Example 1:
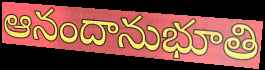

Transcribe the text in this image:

ఆనందానుభూతి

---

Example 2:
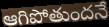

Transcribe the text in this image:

ఆగిపోతుందనే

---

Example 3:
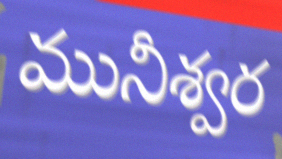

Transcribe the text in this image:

మునీశ్వర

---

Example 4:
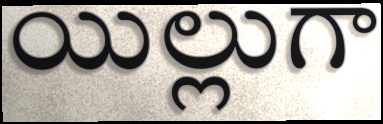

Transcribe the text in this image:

యిల్లుగా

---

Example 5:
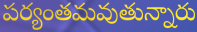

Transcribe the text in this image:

పర్యంతమవుతున్నారు